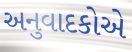
અનુવાદકોએ